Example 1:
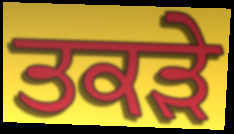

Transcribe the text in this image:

ਤਕੜੇ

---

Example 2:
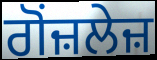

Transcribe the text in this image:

ਗੋਂਜ਼ਲੇਜ਼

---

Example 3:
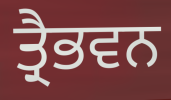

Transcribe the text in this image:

ਤ੍ਰੈਭਵਨ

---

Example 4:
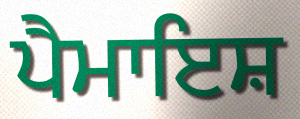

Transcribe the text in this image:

ਪੈਮਾਇਸ਼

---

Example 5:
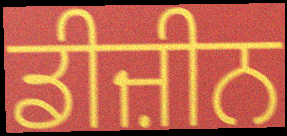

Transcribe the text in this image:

ਡੀਜ਼ੀਨ